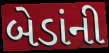
બેડાંની